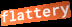
flattery